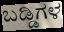
ಬಡ್ಡಿಗಳ